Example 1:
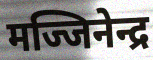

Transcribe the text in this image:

मज्जिनेन्द्र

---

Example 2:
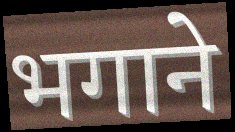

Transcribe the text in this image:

भगाने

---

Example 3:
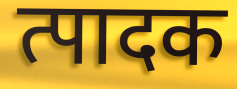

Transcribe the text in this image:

त्पादक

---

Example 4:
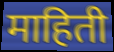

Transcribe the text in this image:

माहिती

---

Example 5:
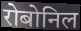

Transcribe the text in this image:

रोबोनिल